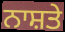
ਨਾਸ਼ਤੇ